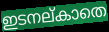
ഇടനല്കാതെ